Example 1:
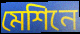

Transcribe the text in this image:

মেশিনে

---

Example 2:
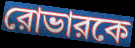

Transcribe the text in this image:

রোভারকে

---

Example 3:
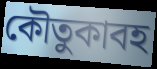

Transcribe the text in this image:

কৌতুকাবহ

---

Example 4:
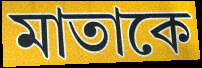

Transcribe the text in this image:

মাতাকে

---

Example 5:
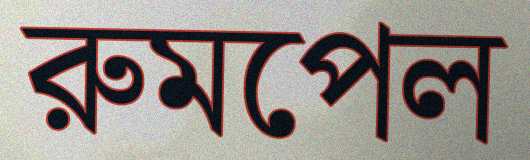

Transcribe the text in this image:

রুমপেল